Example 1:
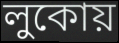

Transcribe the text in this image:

লুকোয়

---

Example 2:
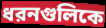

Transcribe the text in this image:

ধরনগুলিকে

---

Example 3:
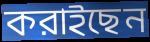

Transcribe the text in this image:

করাইছেন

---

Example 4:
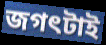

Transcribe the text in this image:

জগৎটাই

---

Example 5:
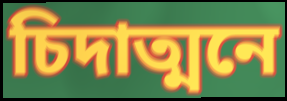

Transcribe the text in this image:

চিদাত্মনে